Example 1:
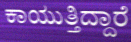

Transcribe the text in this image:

ಕಾಯುತ್ತಿದ್ದಾರೆ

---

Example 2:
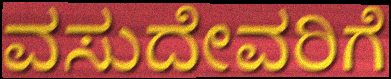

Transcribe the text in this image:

ವಸುದೇವರಿಗೆ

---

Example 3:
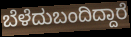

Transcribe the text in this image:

ಬೆಳೆದುಬಂದಿದ್ದಾರೆ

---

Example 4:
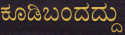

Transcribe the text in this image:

ಕೂಡಿಬಂದದ್ದು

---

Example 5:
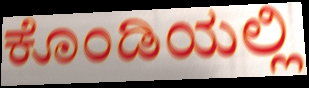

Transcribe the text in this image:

ಕೊಂಡಿಯಲ್ಲಿ